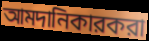
আমদানিকারকরা